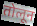
तोलून